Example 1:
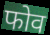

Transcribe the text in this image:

फोव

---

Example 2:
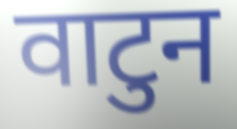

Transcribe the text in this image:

वाटुन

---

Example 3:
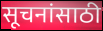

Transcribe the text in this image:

सूचनांसाठी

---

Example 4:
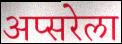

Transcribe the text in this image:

अप्सरेला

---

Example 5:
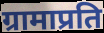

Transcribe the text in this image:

ग्रामाप्रति